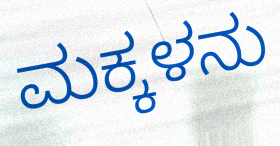
ಮಕ್ಕಳನು